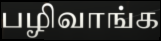
பழிவாங்க